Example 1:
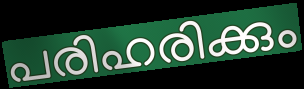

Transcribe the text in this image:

പരിഹരിക്കും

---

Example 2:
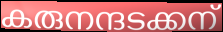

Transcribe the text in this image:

കരുനന്ദടക്കന്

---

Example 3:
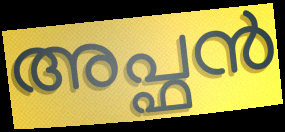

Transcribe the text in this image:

അപ്ഫൻ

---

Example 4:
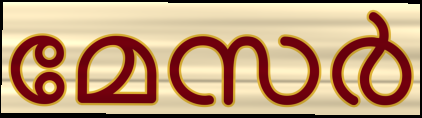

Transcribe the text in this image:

മേസർ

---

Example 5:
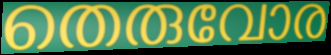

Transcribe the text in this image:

തെരുവോര